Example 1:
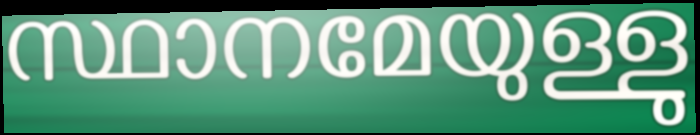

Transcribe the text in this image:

സ്ഥാനമേയുള്ളു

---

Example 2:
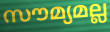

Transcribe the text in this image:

സൗമ്യമല്ല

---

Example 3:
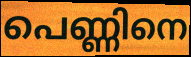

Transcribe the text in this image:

പെണ്ണിനെ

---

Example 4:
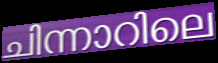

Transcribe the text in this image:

ചിന്നാറിലെ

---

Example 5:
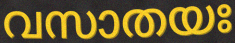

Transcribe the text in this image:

വസാതയഃ